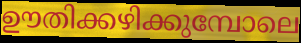
ഊതിക്കഴിക്കുമ്പോലെ